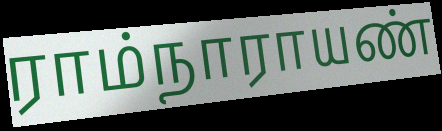
ராம்நாராயண்